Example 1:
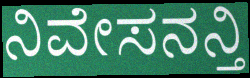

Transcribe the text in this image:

ನಿವೇಸನನ್ತಿ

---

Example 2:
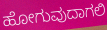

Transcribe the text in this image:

ಹೋಗುವುದಾಗಲಿ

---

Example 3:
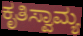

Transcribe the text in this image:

ಕೃತಿಸ್ವಾಮ್ಯ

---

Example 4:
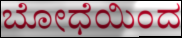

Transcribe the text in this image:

ಬೋಧೆಯಿಂದ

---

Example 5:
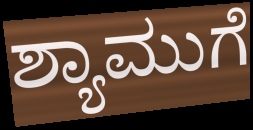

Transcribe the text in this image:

ಶ್ಯಾಮುಗೆ